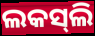
ଲକସ୍‍ଲି